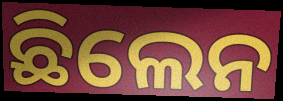
ଛିଲେନ